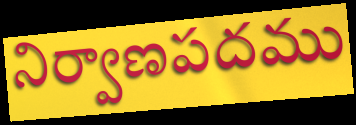
నిర్వాణపదము